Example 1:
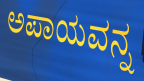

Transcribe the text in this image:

ಅಪಾಯವನ್ನ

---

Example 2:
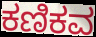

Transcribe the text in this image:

ಕಣಿಕವ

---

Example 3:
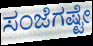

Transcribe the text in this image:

ಸಂಜೆಗಷ್ಟೇ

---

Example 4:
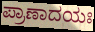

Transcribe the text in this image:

ಪ್ರಾಣಾದಯಃ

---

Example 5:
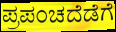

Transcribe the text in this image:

ಪ್ರಪಂಚದೆಡೆಗೆ